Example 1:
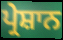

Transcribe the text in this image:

ਪ੍ਰੇਸ਼ਾਨ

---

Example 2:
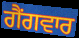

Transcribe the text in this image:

ਗੈਂਗਵਾਰ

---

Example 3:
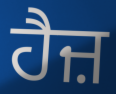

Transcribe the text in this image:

ਹੈਜ਼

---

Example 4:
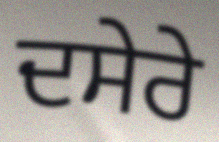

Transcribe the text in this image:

ਦਸੇਰੇ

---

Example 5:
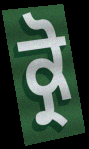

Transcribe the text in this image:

ਕ੍ਰੋ